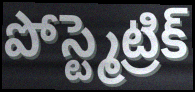
పోస్ట్మెట్రిక్